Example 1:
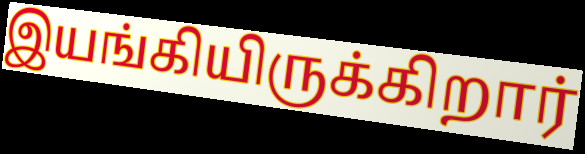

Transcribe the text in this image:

இயங்கியிருக்கிறார்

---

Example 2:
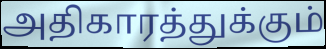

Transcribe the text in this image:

அதிகாரத்துக்கும்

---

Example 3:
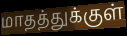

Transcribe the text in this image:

மாதத்துக்குள்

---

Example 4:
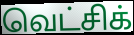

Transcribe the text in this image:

வெட்சிக்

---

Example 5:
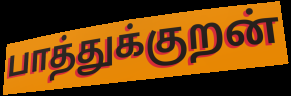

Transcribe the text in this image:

பாத்துக்குறன்